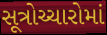
સૂત્રોચ્ચારોમાં